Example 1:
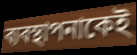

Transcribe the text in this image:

ব্যবস্থাপনাকেই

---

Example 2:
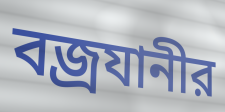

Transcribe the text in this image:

বজ্রযানীর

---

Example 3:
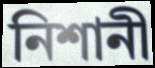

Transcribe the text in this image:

নিশানী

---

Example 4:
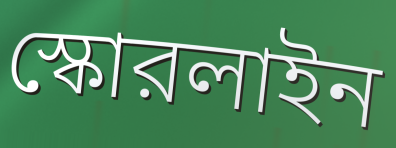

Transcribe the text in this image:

স্কোরলাইন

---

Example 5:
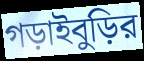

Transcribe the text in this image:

গড়াইবুড়ির